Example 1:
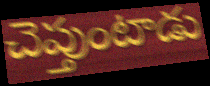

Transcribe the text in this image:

చెప్తుంటాడు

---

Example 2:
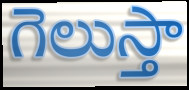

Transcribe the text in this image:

గెలుస్తా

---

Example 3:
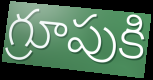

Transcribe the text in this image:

గ్రూపుకి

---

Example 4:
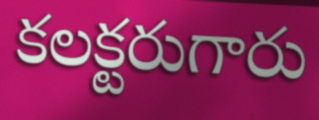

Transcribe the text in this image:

కలక్టరుగారు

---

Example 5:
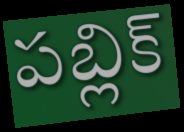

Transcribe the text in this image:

పబ్లిక్